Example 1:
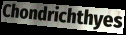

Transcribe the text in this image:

Chondrichthyes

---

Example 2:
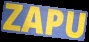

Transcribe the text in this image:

ZAPU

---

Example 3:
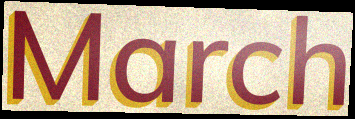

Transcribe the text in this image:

March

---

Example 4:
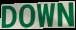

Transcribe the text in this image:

DOWN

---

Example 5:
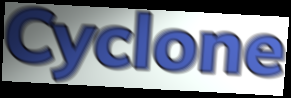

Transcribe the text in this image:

Cyclone